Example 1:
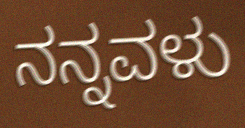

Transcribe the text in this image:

ನನ್ನವಳು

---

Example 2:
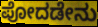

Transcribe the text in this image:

ಪೋದಡೇನು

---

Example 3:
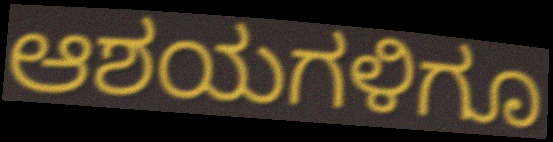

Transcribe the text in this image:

ಆಶಯಗಳಿಗೂ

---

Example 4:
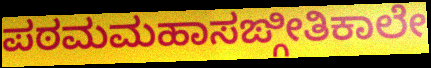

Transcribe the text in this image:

ಪಠಮಮಹಾಸಙ್ಗೀತಿಕಾಲೇ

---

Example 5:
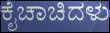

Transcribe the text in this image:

ಕೈಚಾಚಿದಳು